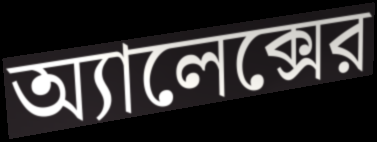
অ্যালেক্সের